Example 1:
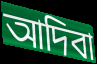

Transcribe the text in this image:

আদিবা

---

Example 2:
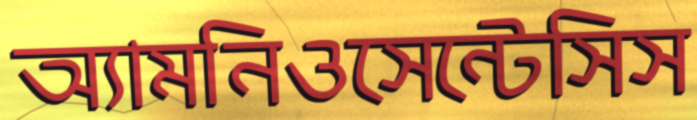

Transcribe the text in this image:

অ্যামনিওসেন্টেসিস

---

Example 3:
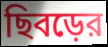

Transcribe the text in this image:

ছিবড়ের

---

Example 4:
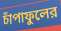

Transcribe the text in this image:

চাঁপাফুলের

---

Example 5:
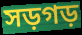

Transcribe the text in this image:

সড়গড়